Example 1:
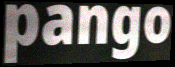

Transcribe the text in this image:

pango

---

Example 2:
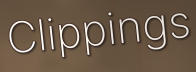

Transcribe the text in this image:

Clippings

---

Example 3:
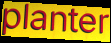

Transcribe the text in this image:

planter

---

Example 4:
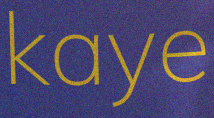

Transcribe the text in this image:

kaye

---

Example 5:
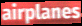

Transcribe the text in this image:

airplanes